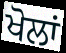
ਖੋਲਾਂ